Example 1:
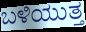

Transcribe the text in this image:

ಬಳಿಯುತ್ತ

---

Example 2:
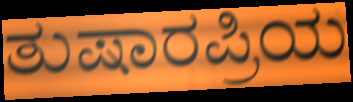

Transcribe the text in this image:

ತುಷಾರಪ್ರಿಯ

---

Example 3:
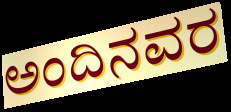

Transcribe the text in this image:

ಅಂದಿನವರ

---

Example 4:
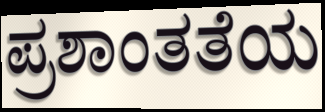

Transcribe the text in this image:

ಪ್ರಶಾಂತತೆಯ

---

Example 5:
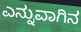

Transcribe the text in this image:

ಎನ್ನುವಾಗಿನ